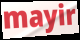
mayir